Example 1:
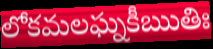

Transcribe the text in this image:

లోకమలఘ్నకీఋతిః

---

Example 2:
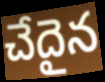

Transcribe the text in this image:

చేదైన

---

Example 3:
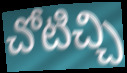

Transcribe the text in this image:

చోటిచ్చి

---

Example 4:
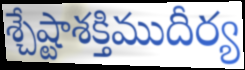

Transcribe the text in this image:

శ్చేష్టాశక్తిముదీర్య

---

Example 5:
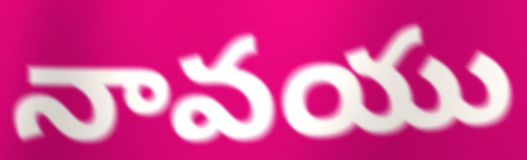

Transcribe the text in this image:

నావయు